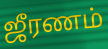
ஜீரணம்